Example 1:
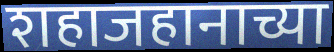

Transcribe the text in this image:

शहाजहानाच्या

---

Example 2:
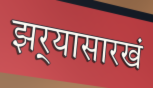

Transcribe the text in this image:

झर्यासारखं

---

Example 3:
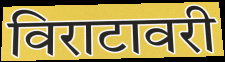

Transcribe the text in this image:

विराटावरी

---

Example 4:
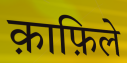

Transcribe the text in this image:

क़ाफ़िले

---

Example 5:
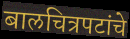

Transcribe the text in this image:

बालचित्रपटांचे